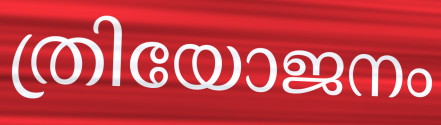
ത്രിയോജനം